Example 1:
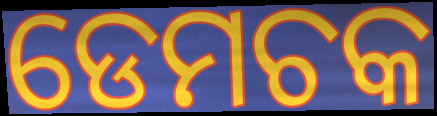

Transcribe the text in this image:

ଡେମଚକ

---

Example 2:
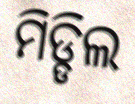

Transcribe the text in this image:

ମିଡ୍ଡିଲ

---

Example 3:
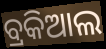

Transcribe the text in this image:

ବ୍ରକିଆଲ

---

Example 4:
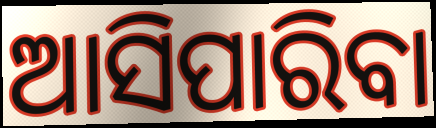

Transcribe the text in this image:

ଆସିପାରିବା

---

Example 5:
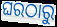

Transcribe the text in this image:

ଘରଠାରୁ